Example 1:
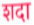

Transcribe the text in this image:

शदा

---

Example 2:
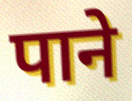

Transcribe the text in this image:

पाने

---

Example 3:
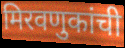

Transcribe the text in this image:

मिरवणुकांची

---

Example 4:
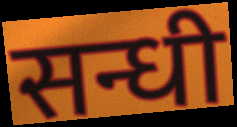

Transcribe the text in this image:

सन्धी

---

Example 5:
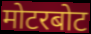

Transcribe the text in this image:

मोटरबोट